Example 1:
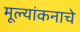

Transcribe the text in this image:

मूल्यांकनाचे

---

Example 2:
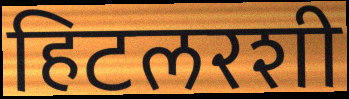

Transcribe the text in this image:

हिटलरशी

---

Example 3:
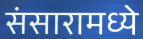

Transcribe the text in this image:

संसारामध्ये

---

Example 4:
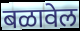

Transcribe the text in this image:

बळावेल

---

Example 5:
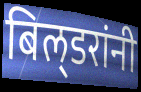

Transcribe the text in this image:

बिल्डरांनी